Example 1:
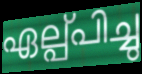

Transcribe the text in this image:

ഏല്പ്പിച്ചു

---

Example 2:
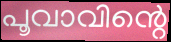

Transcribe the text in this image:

പൂവാവിന്റെ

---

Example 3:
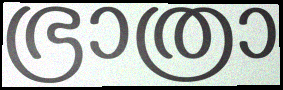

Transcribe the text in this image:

ഭ്രാത്രാ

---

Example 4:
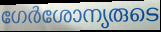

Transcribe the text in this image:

ഗേർശോന്യരുടെ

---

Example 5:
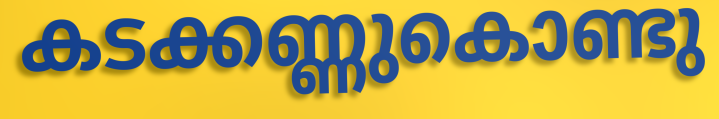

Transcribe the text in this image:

കടക്കണ്ണുകൊണ്ടു